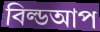
বিল্ডআপ